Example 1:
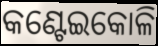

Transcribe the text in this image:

କଣ୍ଟେଇକୋଳି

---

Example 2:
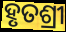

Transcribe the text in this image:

ହୃତଶ୍ରୀ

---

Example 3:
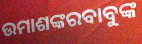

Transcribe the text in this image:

ଉମାଶଙ୍କରବାବୁଙ୍କ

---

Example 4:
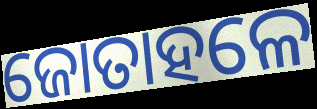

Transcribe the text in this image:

ଜୋତାହଳେ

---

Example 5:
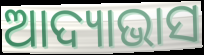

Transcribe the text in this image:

ଆଦ୍ୟାଭାସ